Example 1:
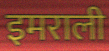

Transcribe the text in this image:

इमराली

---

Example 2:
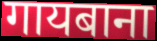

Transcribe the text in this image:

गायबाना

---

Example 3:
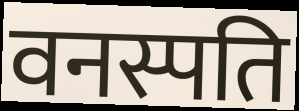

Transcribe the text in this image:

वनस्‍पति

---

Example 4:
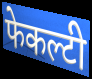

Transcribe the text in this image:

फेकल्टी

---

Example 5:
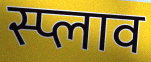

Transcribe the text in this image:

स्प्लाव